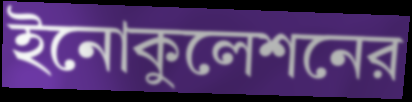
ইনোকুলেশনের